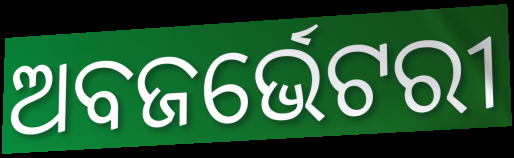
ଅବଜର୍ଭେଟରୀ